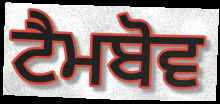
ਟੈਮਬੋਵ